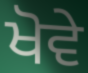
ਖੋਵੇ